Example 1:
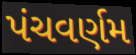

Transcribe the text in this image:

પંચવર્ણમ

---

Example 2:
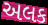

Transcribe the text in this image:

અલક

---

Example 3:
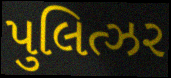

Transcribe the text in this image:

પુલિત્ઝર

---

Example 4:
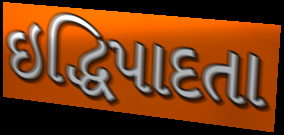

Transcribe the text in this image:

ઇદ્ધિપાદતા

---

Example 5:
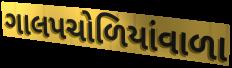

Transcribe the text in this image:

ગાલપચોળિયાંવાળા